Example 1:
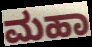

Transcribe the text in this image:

ಮಹಾ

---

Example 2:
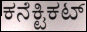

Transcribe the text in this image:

ಕನೆಕ್ಟಿಕಟ್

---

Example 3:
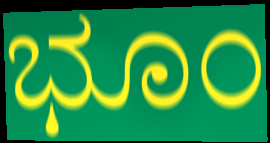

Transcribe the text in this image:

ಭೂಂ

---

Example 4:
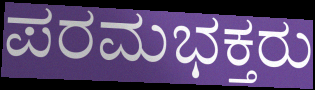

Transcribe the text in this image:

ಪರಮಭಕ್ತರು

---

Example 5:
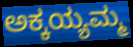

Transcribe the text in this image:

ಅಕ್ಕಯ್ಯಮ್ಮ